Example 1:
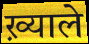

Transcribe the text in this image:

ख़्याले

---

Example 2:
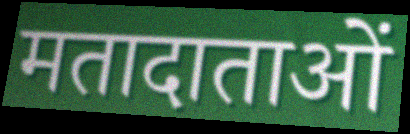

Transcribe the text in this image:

मतादाताओं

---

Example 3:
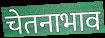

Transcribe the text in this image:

चेतनाभाव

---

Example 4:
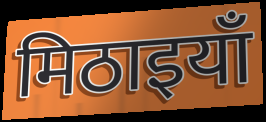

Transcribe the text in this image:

मिठाइयाँ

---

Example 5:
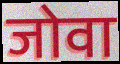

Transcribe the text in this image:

जोवा